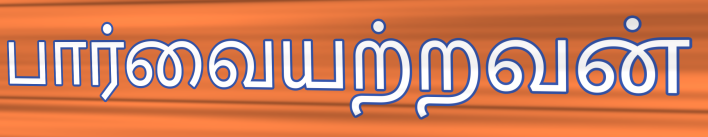
பார்வையற்றவன்